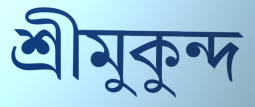
শ্রীমুকুন্দ